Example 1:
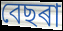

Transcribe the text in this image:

বেছৰা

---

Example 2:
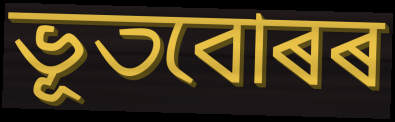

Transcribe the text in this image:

ভূতবোৰৰ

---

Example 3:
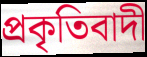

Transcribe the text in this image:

প্ৰকৃতিবাদী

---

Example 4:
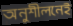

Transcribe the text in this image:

অনুশীলনেই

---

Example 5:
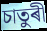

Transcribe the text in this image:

চাতুৰী